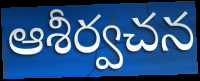
ఆశీర్వచన